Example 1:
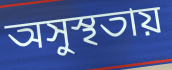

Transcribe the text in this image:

অসুস্থতায়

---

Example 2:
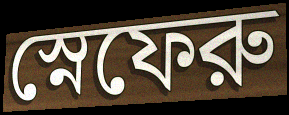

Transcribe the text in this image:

স্নেফেরু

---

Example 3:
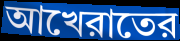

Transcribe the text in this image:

আখেরাতের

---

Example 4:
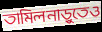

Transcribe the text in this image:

তামিলনাড়ুতেও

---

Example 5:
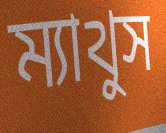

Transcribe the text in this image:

ম্যাথুস